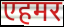
एहमर